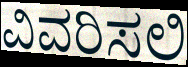
ವಿವರಿಸಲಿ